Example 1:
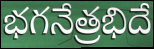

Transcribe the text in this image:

భగనేత్రభిదే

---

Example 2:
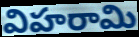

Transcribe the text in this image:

విహరామి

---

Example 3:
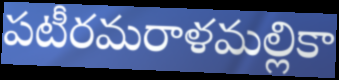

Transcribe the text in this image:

పటీరమరాళమల్లికా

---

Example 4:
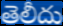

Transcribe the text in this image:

తెలీదు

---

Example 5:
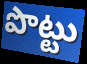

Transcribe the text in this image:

పొట్టు